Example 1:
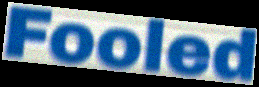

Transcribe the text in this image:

Fooled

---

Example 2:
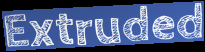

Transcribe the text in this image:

Extruded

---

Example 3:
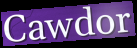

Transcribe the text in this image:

Cawdor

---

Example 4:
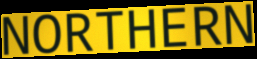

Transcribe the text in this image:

NORTHERN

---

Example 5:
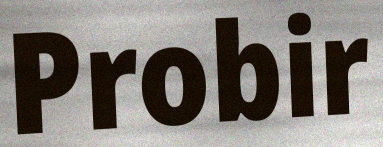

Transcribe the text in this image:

Probir